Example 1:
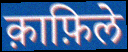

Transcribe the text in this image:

क़ाफ़िले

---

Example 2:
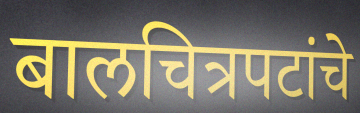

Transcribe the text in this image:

बालचित्रपटांचे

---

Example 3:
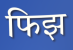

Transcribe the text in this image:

फिझ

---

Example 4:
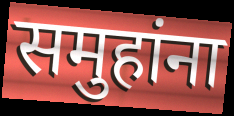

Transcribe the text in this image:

समुहांना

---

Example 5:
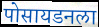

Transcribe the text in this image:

पोसायडनला